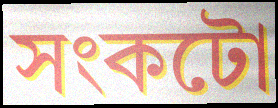
সংকটো